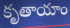
కృతాయాం